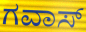
ಗವಾಸ್